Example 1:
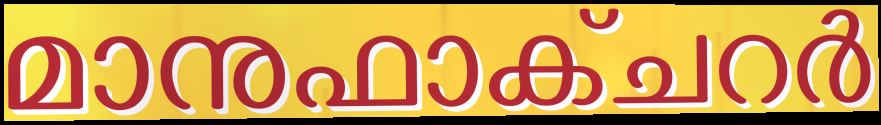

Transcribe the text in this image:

മാനുഫാക്ചറർ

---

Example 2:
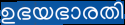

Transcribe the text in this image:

ഉഭയഭാരതി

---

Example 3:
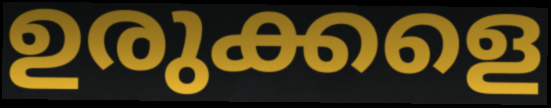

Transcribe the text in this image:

ഉരുക്കളെ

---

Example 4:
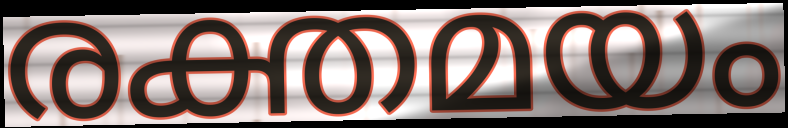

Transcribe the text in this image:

രക്തമയം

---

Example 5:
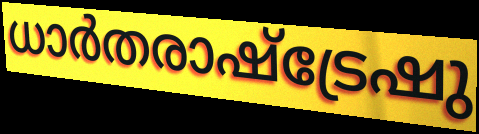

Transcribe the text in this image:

ധാർതരാഷ്ട്രേഷു